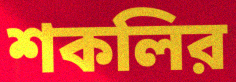
শকলির